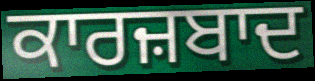
ਕਾਰਜ਼ਬਾਦ